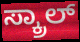
ಸ್ಕ್ರಾಲ್